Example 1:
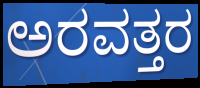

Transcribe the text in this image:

ಅರವತ್ತರ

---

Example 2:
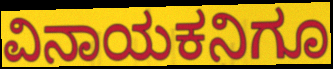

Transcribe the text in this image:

ವಿನಾಯಕನಿಗೂ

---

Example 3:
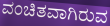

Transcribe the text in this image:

ವಂಚಿತವಾಗಿರುವ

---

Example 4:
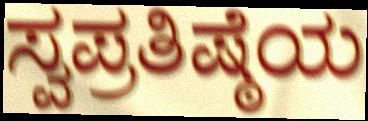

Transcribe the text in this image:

ಸ್ವಪ್ರತಿಷ್ಠೆಯ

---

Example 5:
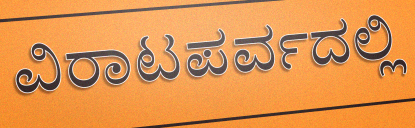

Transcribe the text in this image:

ವಿರಾಟಪರ್ವದಲ್ಲಿ